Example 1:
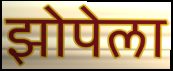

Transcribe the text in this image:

झोपेला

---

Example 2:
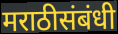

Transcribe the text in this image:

मराठीसंबंधी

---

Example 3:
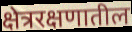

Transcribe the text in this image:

क्षेत्ररक्षणातील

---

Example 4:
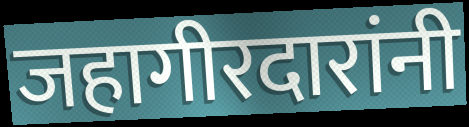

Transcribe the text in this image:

जहागीरदारांनी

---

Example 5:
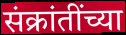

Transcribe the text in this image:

संक्रांतींच्या